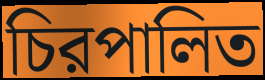
চিরপালিত